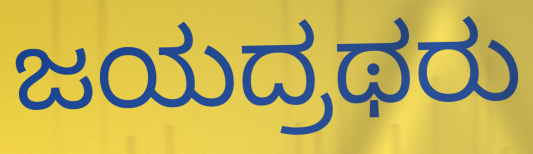
ಜಯದ್ರಥರು